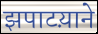
झपाटय़ाने